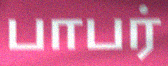
பாபர்